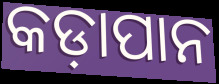
କଡ଼ାପାନ